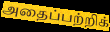
அதைப்பற்றிக்